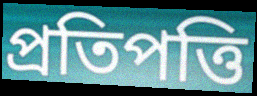
প্ৰতিপত্তি